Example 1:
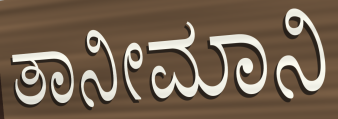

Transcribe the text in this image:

ತಾನೀಮಾನಿ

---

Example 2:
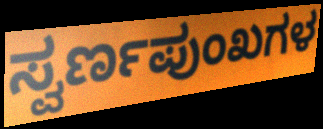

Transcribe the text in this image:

ಸ್ವರ್ಣಪುಂಖಗಳ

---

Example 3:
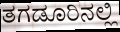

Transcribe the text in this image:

ತಗಡೂರಿನಲ್ಲಿ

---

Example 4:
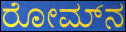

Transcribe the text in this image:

ರೋಮ್‌ನ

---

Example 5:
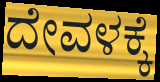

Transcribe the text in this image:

ದೇವಳಕ್ಕೆ